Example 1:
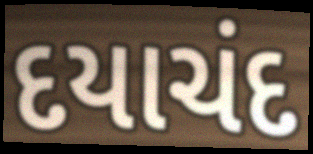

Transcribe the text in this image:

દયાચંદ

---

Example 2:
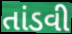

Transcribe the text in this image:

તાંડવી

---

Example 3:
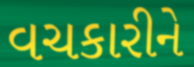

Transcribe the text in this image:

વચકારીને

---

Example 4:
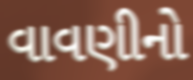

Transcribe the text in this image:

વાવણીનો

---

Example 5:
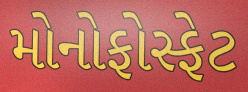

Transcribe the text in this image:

મોનોફોસ્ફેટ